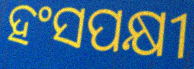
ହଂସପକ୍ଷୀ